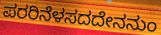
ಪರರಿನೆಳಸದದೇನನುಂ